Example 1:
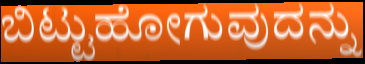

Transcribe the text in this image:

ಬಿಟ್ಟುಹೋಗುವುದನ್ನು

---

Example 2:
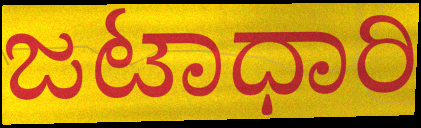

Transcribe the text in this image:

ಜಟಾಧಾರಿ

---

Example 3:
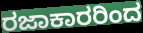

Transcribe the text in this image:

ರಜಾಕಾರರಿಂದ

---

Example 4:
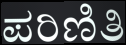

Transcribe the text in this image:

ಪರಿಣಿತಿ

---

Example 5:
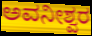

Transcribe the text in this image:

ಅವನೀಶ್ವರ